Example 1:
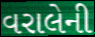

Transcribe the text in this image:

વરાલેની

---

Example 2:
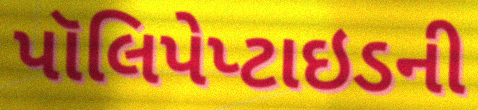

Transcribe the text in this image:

પૉલિપેપ્ટાઇડની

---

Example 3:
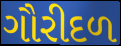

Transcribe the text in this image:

ગૌરીદળ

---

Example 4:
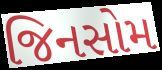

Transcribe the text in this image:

જિનસોમ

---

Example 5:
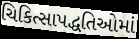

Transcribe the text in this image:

ચિકિત્સાપદ્ધતિઓમાં